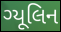
ગ્યૂલિન